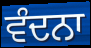
ਵੰਦਨਾ